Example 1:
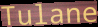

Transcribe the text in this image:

Tulane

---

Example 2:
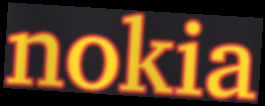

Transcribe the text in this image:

nokia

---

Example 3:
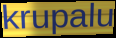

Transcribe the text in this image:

krupalu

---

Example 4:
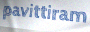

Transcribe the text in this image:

pavittiram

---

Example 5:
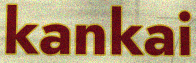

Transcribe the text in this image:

kankai